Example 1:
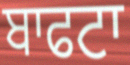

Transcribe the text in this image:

ਬਾਫਟਾ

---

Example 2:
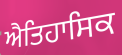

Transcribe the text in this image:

ਐਤਿਹਾਸਿਕ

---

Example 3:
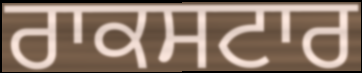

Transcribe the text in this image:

ਰਾਕਸਟਾਰ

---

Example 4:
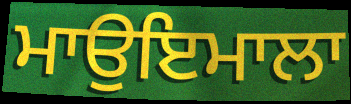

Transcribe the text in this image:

ਮਾਉਇਮਾਲਾ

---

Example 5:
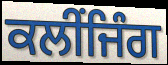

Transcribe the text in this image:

ਕਲੀਂਜਿੰਗ